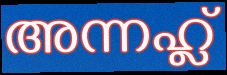
അന്നഹ്ല്